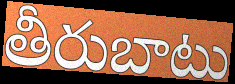
తీరుబాటు